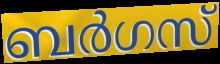
ബർഗസ്